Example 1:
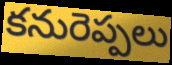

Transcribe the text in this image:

కనురెప్పలు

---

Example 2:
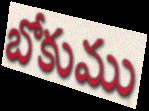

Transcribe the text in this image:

బోకుము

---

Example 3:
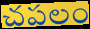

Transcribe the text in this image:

చపలం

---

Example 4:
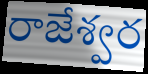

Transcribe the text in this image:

రాజేశ్వర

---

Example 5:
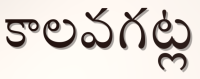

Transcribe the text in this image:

కాలవగట్ల